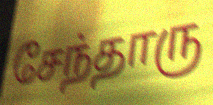
சேந்தாரு